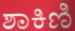
ಶಾಕಿಣಿ